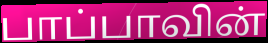
பாப்பாவின்